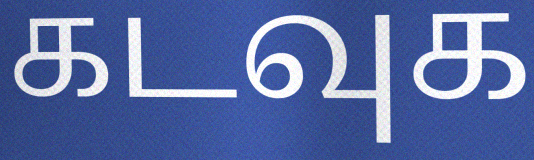
கடவுக